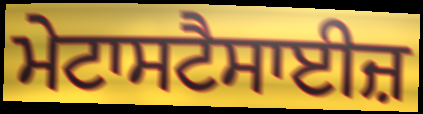
ਮੇਟਾਸਟੈਸਾਈਜ਼